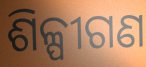
ଶିଳ୍ପୀଗଣ